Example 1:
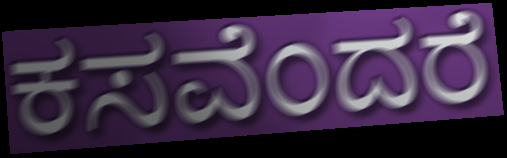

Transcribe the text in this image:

ಕಸವೆಂದರೆ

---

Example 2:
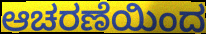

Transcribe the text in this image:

ಆಚರಣೆಯಿಂದ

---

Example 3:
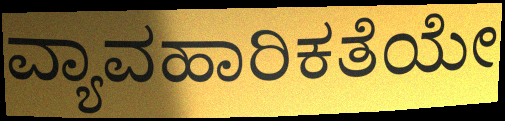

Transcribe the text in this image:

ವ್ಯಾವಹಾರಿಕತೆಯೇ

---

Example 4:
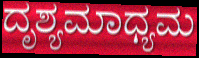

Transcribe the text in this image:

ದೃಶ್ಯಮಾಧ್ಯಮ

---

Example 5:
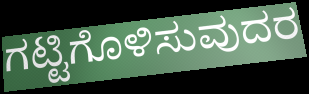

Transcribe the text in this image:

ಗಟ್ಟಿಗೊಳಿಸುವುದರ